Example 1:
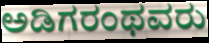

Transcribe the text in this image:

ಅಡಿಗರಂಥವರು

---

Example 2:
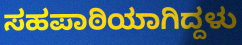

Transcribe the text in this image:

ಸಹಪಾಠಿಯಾಗಿದ್ದಳು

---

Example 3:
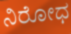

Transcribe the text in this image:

ನಿರೋಧ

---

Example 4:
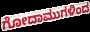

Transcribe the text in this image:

ಗೋದಾಮುಗಳಿಂದ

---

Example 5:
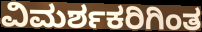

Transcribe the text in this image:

ವಿಮರ್ಶಕರಿಗಿಂತ